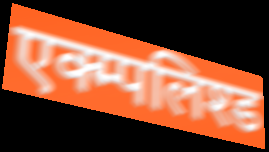
एक्म्पलिश्ड